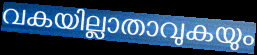
വകയില്ലാതാവുകയും